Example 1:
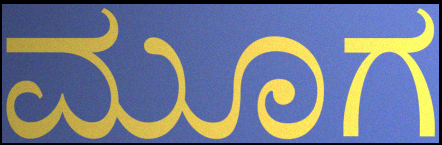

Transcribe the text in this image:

ಮೂಗ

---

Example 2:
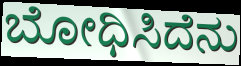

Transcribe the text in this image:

ಬೋಧಿಸಿದೆನು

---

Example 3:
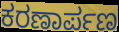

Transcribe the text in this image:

ಕರಣಾರ್ಪಣ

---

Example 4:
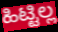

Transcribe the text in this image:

ಹಿಟ್ಟಿಲ್ಲ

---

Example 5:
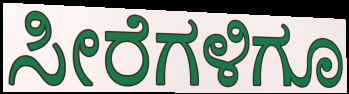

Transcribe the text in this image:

ಸೀರೆಗಳಿಗೂ